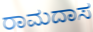
ರಾಮದಾಸ